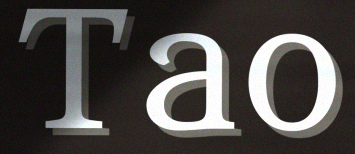
Tao